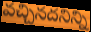
వచ్చినదనిన్ని